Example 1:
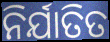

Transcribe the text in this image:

ନିର୍ଯାତିତ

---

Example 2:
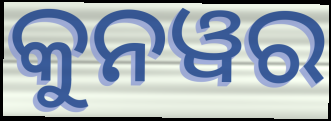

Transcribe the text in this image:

କୁନୱର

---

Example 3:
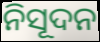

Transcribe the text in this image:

ନିସୂଦନ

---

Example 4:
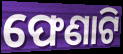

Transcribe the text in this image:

ଫେଣାଟି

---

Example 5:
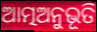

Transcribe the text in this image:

ଆତ୍ମଅନୁଭୂତି